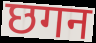
छगन